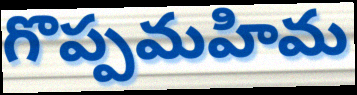
గొప్పమహిమ